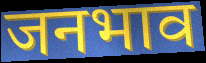
जनभाव